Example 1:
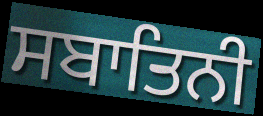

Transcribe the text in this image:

ਸਬਾਤਿਨੀ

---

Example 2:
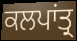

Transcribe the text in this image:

ਕਲਪਾਂਤ੍ਰ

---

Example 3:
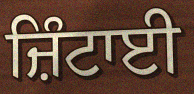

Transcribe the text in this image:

ਜ਼ਿੰਟਾਈ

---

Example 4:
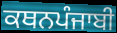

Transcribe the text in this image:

ਕਥਨਪੰਜਾਬੀ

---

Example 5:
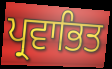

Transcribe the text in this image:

ਪ੍ਰਵਾਭਿਤ